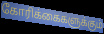
கோரிக்கைகளுக்கும்